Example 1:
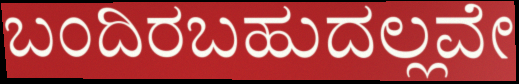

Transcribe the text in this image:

ಬಂದಿರಬಹುದಲ್ಲವೇ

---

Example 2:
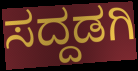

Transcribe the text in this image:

ಸದ್ದಡಗಿ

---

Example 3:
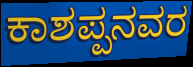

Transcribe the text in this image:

ಕಾಶಪ್ಪನವರ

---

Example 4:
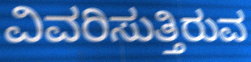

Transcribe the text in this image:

ವಿವರಿಸುತ್ತಿರುವ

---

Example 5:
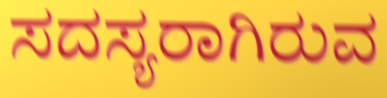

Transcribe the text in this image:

ಸದಸ್ಯರಾಗಿರುವ